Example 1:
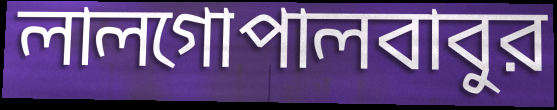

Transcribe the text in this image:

লালগোপালবাবুর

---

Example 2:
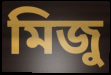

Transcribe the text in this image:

মিজু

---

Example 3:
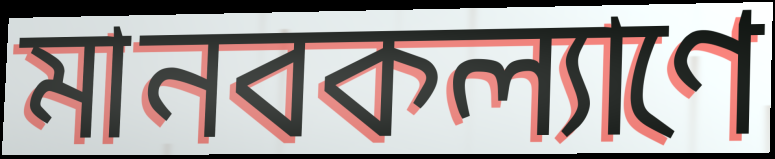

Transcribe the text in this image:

মানবকল্যাণে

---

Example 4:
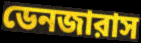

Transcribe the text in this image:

ডেনজারাস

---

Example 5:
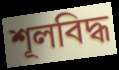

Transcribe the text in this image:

শূলবিদ্ধ